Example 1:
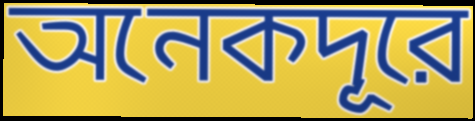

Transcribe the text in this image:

অনেকদূরে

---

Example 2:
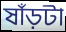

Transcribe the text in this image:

ষাঁড়টা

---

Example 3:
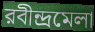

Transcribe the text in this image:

রবীন্দ্রমেলা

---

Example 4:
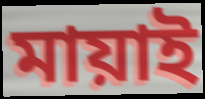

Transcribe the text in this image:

মায়াই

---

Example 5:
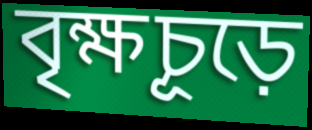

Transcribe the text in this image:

বৃক্ষচূড়ে